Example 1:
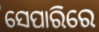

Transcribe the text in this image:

ସେପାରିରେ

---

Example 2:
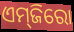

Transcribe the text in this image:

ଏମ୍‌ଜିରୋ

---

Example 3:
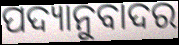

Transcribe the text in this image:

ପଦ୍ୟାନୁବାଦର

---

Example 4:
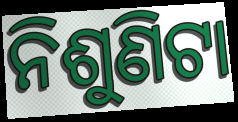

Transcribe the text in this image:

ନିଶୁଣିଟା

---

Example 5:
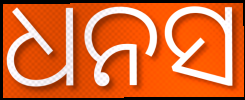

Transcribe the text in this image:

ଧନସ